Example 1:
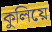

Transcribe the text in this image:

কুলিয়ে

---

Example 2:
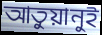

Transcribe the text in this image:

আতুয়ানুই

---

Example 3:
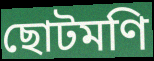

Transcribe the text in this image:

ছোটমণি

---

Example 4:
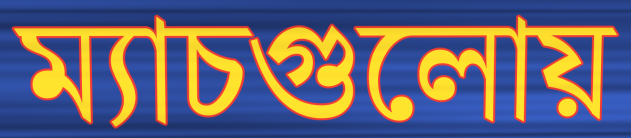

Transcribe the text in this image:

ম্যাচগুলোয়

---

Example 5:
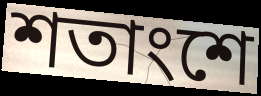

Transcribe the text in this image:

শতাংশে